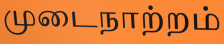
முடைநாற்றம்